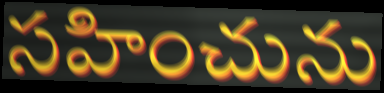
సహించును